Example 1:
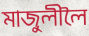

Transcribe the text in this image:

মাজুলীলৈ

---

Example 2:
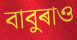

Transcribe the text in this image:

বাবুৰাও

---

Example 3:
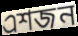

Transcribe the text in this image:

এশজন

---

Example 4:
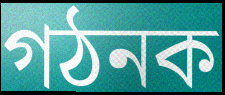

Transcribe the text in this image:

গঠনক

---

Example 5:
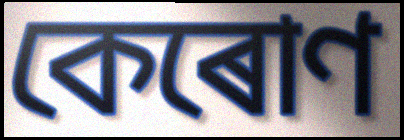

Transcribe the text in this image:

কেৰোণ